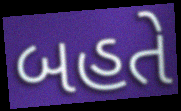
બહતે